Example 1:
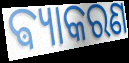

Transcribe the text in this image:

ଵ୍ଯାକରଣ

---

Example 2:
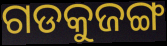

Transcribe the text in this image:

ଗଡକୁଜଙ୍ଗ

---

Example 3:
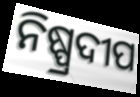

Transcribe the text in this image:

ନିଷ୍ପ୍ରଦୀପ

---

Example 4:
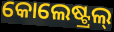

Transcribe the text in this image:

କୋଲେଷ୍ଟ୍ରଲ୍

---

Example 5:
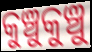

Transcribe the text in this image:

କୁଞ୍ଚୁକୁଞ୍ଚୁ